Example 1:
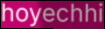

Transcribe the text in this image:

hoyechhi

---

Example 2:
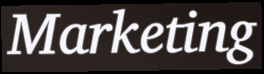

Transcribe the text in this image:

Marketing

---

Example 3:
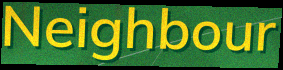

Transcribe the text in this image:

Neighbour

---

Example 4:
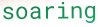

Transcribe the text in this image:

soaring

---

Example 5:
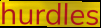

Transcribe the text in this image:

hurdles